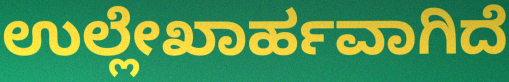
ಉಲ್ಲೇಖಾರ್ಹವಾಗಿದೆ